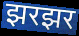
झरझर